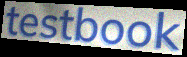
testbook